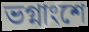
ভগ্নাংশে